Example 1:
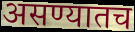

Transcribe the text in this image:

असण्यातच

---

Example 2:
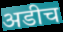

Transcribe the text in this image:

अडीच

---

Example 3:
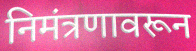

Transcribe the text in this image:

निमंत्रणावरून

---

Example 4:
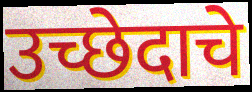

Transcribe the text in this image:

उच्छेदाचे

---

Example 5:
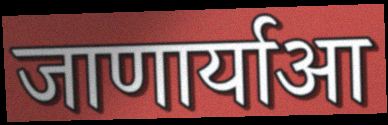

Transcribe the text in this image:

जाणार्याआ